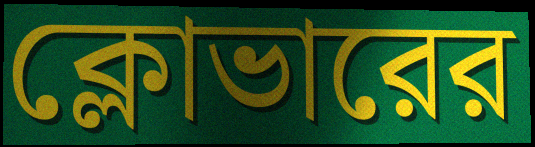
ক্লোভারের